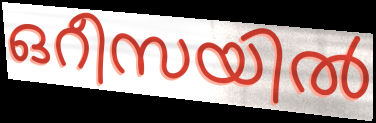
ഒറീസയിൽ